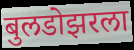
बुलडोझरला